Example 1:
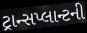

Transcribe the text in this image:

ટ્રાન્સપ્લાન્ટની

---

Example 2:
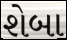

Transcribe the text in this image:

શેબા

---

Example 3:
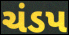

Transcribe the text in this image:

ચંડપ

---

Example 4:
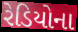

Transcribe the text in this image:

રેડિયોના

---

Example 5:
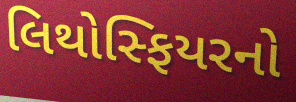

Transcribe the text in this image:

લિથોસ્ફિયરનો